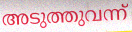
അടുത്തുവന്ന്